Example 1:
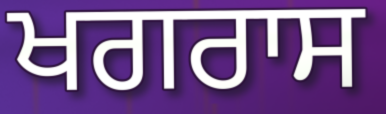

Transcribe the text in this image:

ਖਗਰਾਸ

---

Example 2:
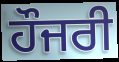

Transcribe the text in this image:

ਹੌਜਰੀ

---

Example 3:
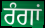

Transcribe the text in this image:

ਰੰਗਾਂ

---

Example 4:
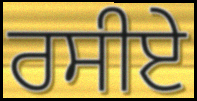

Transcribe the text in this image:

ਰਸੀਏ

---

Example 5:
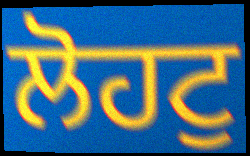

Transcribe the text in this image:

ਲੋਹਟੁ